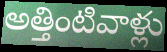
అత్తింటివాళ్లు